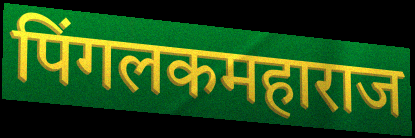
पिंगलकमहाराज